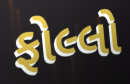
ફોલ્લો